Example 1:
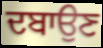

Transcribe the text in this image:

ਦਬਾਉਣ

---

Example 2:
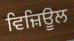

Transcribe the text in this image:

ਵਿਜ਼ਿਊਲ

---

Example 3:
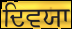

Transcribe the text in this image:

ਦਿਵਯਾ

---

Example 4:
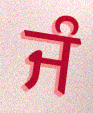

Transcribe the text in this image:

ਜੰ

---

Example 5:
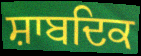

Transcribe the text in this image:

ਸ਼ਾਬਦਿਕ